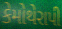
કેમોથેરાપી